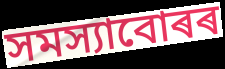
সমস্যাবোৰৰ